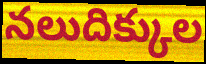
నలుదిక్కుల